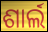
ଶାର୍ଲ